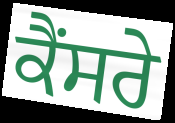
ਕੈਂਸਰੇ